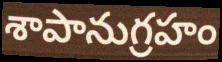
శాపానుగ్రహం